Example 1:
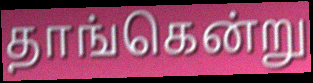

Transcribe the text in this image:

தாங்கென்று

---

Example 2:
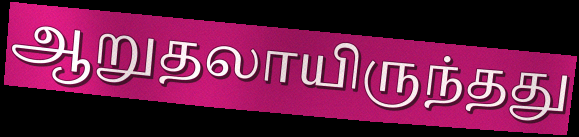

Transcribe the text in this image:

ஆறுதலாயிருந்தது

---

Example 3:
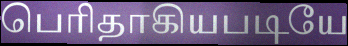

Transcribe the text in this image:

பெரிதாகியபடியே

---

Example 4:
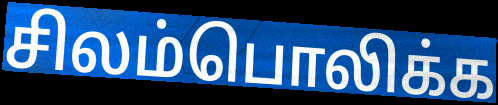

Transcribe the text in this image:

சிலம்பொலிக்க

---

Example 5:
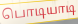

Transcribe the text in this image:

பொடியாடி